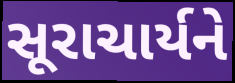
સૂરાચાર્યને